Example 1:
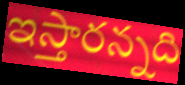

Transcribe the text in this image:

ఇస్తారన్నది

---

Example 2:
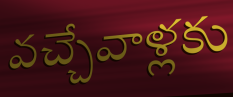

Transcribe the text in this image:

వచ్చేవాళ్లకు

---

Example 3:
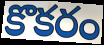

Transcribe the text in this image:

కొకరం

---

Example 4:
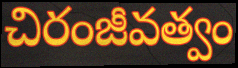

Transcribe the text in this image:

చిరంజీవత్వం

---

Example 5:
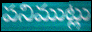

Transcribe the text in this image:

పనిముట్లు